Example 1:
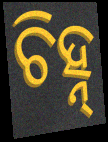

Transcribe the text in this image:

ଚିହ୍ନ୍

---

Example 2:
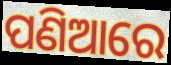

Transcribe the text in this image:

ପଣିଆରେ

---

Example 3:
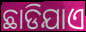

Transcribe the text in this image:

ଛାଡିଯାଏ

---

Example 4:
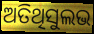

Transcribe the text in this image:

ଅତିଥିସୁଲଭ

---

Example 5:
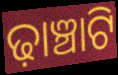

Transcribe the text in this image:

ଢ଼ାଞ୍ଚାଟି